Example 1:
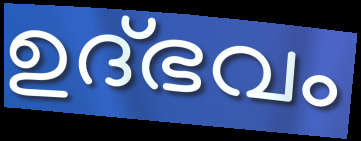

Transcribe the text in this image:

ഉദ്ഭവം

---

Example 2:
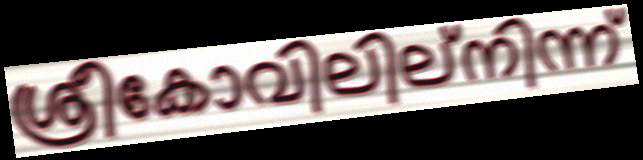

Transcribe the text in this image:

ശ്രീകോവിലില്നിന്ന്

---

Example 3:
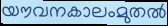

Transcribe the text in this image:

യൗവനകാലംമുതൽ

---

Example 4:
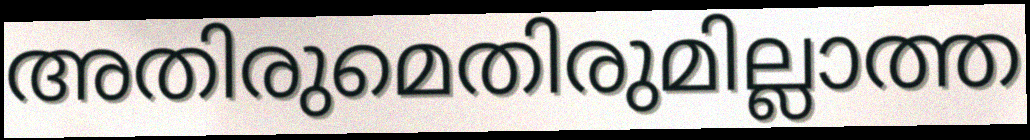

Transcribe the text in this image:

അതിരുമെതിരുമില്ലാത്ത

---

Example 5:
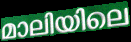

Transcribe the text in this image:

മാലിയിലെ